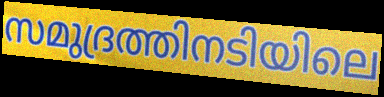
സമുദ്രത്തിനടിയിലെ